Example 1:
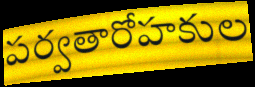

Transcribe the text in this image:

పర్వతారోహకుల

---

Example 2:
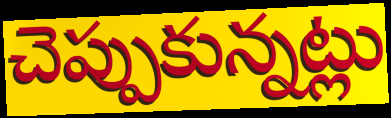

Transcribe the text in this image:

చెప్పుకున్నట్లు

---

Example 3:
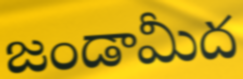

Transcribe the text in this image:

జండామీద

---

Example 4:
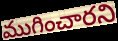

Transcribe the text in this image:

ముగించారని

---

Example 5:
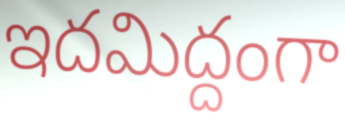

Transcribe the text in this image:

ఇదమిద్దంగా